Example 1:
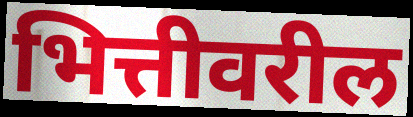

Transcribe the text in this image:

भित्तीवरील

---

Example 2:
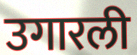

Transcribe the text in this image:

उगारली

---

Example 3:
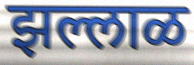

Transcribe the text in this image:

झल्लाळ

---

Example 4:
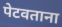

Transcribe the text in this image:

पेटवताना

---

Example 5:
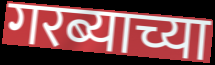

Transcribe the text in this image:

गरब्याच्या